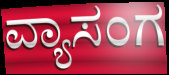
ವ್ಯಾಸಂಗ